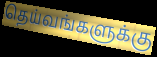
தெய்வங்களுக்கு